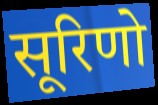
सूरिणो